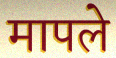
मापले